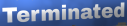
Terminated